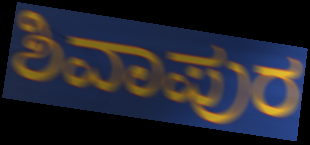
ಶಿವಾಪುರ